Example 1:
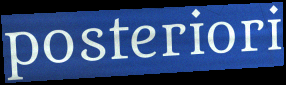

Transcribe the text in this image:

posteriori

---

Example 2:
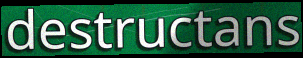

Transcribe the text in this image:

destructans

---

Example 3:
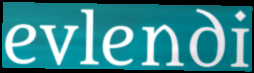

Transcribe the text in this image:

evlendi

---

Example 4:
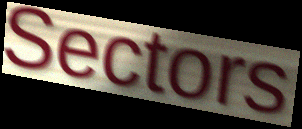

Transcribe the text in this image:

Sectors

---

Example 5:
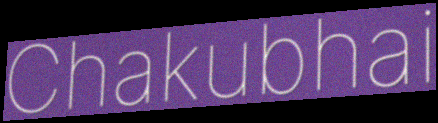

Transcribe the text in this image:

Chakubhai